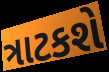
ત્રાટકશે